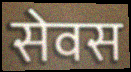
सेवस